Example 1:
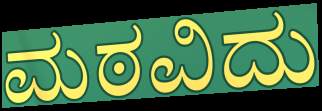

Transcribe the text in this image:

ಮಠವಿದು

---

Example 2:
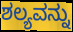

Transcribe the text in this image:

ಶಲ್ಯವನ್ನು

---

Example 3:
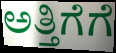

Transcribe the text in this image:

ಅತ್ತಿಗೆಗೆ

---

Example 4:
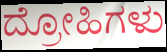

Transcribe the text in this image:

ದ್ರೋಹಿಗಳು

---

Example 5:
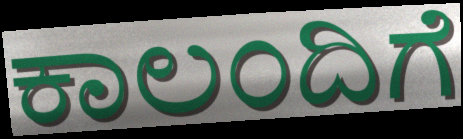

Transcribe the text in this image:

ಕಾಲಂದಿಗೆ